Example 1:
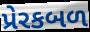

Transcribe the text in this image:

પ્રેરકબળ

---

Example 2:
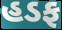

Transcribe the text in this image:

હડફ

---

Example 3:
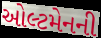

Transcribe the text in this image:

ઓલ્ટમેનની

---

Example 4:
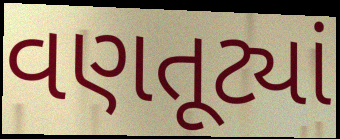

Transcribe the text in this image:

વણતૂટ્યાં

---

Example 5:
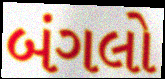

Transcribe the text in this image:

બંગલો